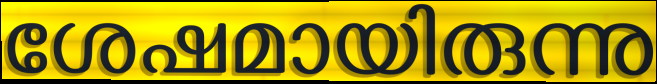
ശേഷമായിരുന്നു